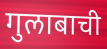
गुलाबाची